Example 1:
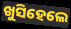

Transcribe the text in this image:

ଖୁସିହେଲେ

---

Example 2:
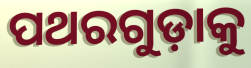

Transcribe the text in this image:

ପଥରଗୁଡ଼ାକୁ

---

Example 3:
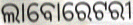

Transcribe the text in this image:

ଲାବୋରେଟରୀ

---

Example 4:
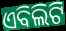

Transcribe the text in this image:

ଏବିଲିଟି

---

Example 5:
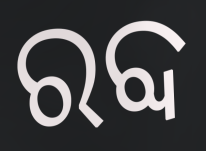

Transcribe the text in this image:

ରବ୍ଦ